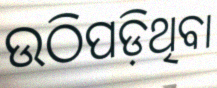
ଉଠିପଡ଼ିଥିବା